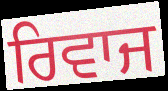
ਰਿਵਾਜ